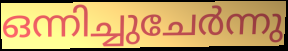
ഒന്നിച്ചുചേർന്നു